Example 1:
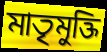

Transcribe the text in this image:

মাতৃমুক্তি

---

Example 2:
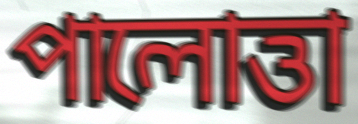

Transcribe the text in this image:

পালোত্তা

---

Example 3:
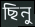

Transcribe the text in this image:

ছিনু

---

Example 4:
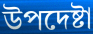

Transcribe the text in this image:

উপদেষ্টা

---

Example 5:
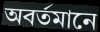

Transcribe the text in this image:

অবর্তমানে